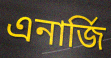
এনার্জি